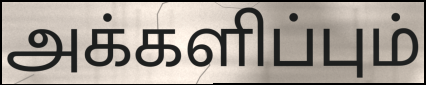
அக்களிப்பும்